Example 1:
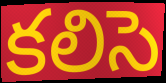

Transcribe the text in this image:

కలిసె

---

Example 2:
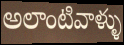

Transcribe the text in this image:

అలాంటివాళ్ళు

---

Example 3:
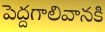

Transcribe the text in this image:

పెద్దగాలివానకి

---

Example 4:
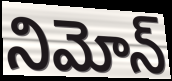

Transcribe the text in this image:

నిమోన్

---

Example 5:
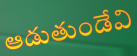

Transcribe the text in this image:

ఆడుతుండేవి